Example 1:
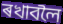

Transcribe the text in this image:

ৰখাবলৈ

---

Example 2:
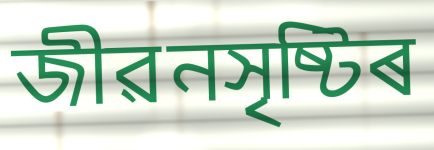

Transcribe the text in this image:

জীৱনসৃষ্টিৰ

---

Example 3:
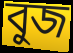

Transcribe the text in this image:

বুজ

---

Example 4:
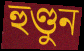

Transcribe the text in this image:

হুণ্ডুন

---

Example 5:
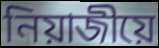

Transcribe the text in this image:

নিয়াজীয়ে